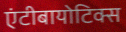
एंटीबायोटिक्स